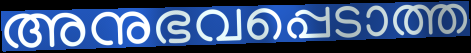
അനുഭവപ്പെടാത്ത